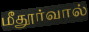
மீதூர்வால்